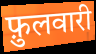
फ़ुलवारी